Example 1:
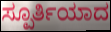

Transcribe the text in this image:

ಸ್ಪೂರ್ತಿಯಾದ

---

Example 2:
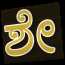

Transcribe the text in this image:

ಶೇ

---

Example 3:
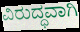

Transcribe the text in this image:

ವಿರುದ್ಧವಾಗಿ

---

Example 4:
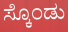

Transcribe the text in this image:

ಸ್ಕೊಂಡು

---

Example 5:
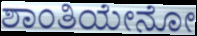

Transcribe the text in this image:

ಶಾಂತಿಯೇನೋ